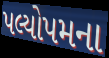
પલ્યોપમના